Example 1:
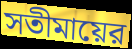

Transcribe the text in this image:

সতীমায়ের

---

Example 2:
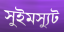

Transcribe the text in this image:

সুইমস্যুট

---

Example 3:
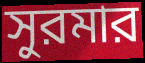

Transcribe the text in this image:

সুরমার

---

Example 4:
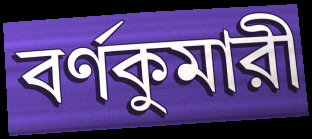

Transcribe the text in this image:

বর্ণকুমারী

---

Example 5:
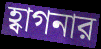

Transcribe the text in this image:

হ্বাগনার